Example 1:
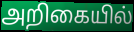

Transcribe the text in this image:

அறிகையில்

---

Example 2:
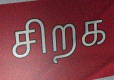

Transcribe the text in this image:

சிறக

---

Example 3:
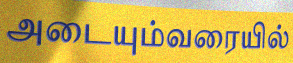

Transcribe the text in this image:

அடையும்வரையில்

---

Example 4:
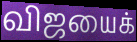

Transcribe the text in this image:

விஜயைக்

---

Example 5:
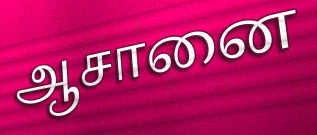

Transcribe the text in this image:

ஆசானை